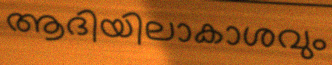
ആദിയിലാകാശവും